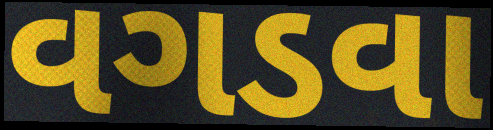
વગડવા